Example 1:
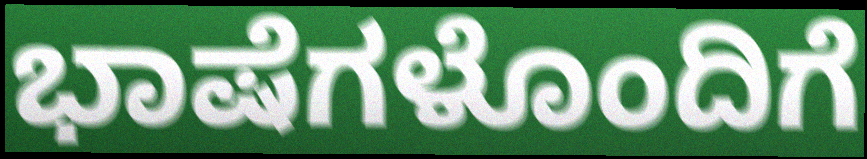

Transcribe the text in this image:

ಭಾಷೆಗಳೊಂದಿಗೆ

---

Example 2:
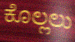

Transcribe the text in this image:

ಕೊಲ್ಲಲು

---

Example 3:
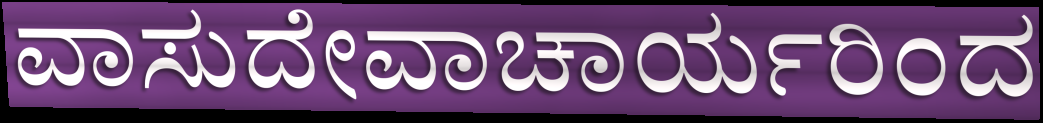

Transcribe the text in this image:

ವಾಸುದೇವಾಚಾರ್ಯರಿಂದ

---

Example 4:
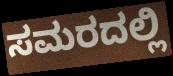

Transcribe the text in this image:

ಸಮರದಲ್ಲಿ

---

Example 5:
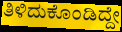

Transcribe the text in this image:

ತಿಳಿದುಕೊಂಡಿದ್ದೇ